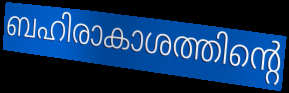
ബഹിരാകാശത്തിന്റെ